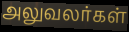
அலுவலர்கள்